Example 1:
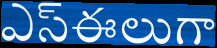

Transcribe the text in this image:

ఎస్ఈలుగా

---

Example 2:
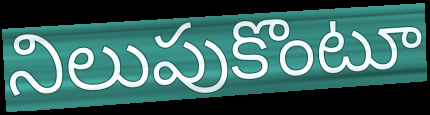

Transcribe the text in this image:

నిలుపుకొంటూ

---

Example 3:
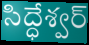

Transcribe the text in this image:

సిద్ధేశ్వర్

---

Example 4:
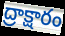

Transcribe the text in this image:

ద్రాక్షారం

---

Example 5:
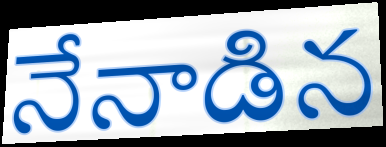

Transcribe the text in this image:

నేనాడిన